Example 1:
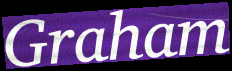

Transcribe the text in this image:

Graham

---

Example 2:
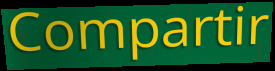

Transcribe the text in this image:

Compartir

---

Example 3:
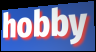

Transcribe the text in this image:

hobby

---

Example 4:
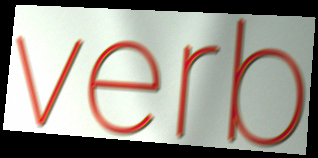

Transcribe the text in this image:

verb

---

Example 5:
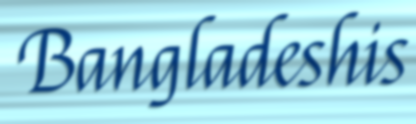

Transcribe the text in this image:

Bangladeshis